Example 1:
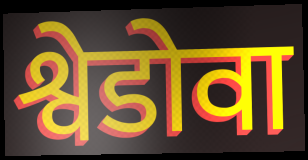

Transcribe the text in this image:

श्वेडोवा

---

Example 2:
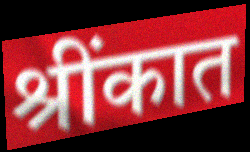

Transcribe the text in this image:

श्रींकात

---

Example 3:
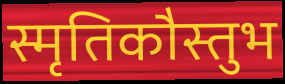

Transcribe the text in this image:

स्मृतिकौस्तुभ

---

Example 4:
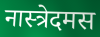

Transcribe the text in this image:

नास्त्रेदमस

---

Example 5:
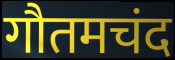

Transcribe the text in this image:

गौतमचंद